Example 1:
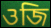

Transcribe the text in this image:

ওজি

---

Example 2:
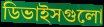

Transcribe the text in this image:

ডিভাইসগুলো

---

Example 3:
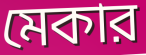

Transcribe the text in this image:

মেকার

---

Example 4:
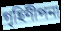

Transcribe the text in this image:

গৃহিণীপনা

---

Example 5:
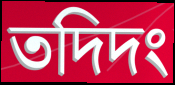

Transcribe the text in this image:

তদিদং